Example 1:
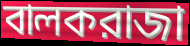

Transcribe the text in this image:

বালকরাজা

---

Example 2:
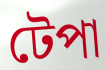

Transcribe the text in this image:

টেপা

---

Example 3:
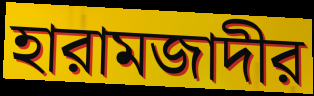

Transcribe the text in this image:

হারামজাদীর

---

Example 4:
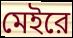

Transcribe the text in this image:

মেইরে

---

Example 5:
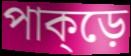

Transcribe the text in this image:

পাক্ড়ে